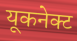
यूकनेक्ट